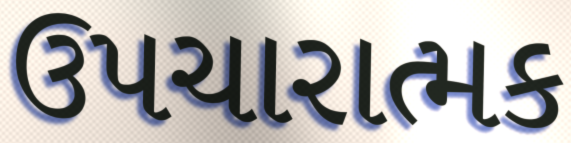
ઉપચારાત્મક